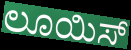
ಲೂಯಿಸ್